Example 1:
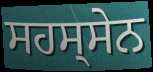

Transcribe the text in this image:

ਸਹਸ੍ਸੇਨ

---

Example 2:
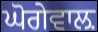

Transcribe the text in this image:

ਘੋਗੇਵਾਲ਼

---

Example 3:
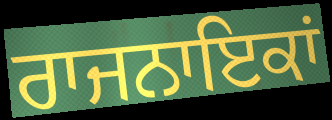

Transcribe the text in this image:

ਰਾਜਨਾਇਕਾਂ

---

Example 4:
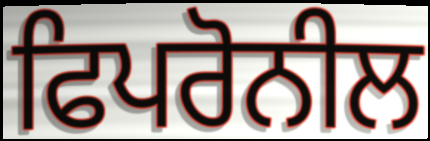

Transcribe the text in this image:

ਫਿਪਰੋਨੀਲ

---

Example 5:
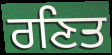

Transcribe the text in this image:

ਰਣਿਤ